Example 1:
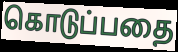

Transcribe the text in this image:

கொடுப்பதை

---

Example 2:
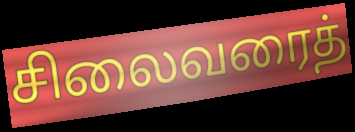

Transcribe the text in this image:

சிலைவரைத்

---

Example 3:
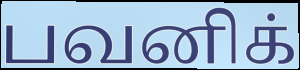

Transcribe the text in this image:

பவனிக்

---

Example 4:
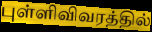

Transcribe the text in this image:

புள்ளிவிவரத்தில்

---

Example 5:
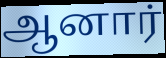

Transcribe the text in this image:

ஆனார்